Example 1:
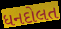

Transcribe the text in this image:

ધનદોલત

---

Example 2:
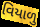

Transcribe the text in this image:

વિયાળુ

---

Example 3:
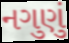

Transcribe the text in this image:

નગુણું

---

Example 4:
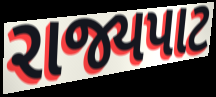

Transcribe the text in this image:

રાજ્યપાટ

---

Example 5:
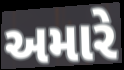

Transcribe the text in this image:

અમારે